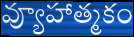
వ్యూహాత్మకం